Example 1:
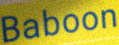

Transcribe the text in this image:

Baboon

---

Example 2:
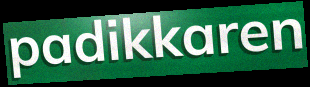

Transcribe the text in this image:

padikkaren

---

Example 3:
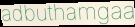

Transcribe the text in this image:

adbuthamgaa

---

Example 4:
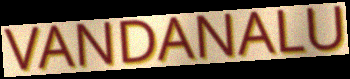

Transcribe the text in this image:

VANDANALU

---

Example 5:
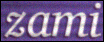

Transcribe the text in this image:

zami